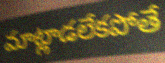
మాట్లాడలేకపోతే